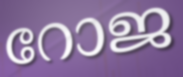
റോജ